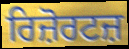
ਰਿਜ਼ੋਰਟਜ਼